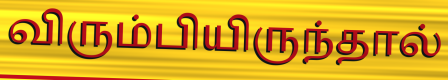
விரும்பியிருந்தால்